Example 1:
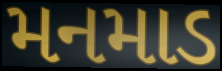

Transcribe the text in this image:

મનમાડ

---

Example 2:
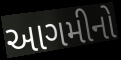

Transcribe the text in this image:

આગમીનો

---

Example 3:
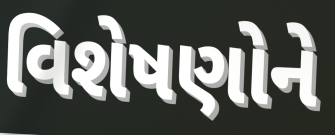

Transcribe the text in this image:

વિશેષણોને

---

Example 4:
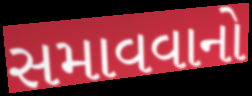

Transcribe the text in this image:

સમાવવાનો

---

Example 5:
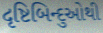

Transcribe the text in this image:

દૃષ્ટિબિન્દુઓથી